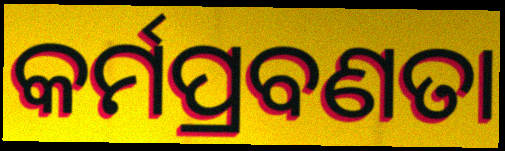
କର୍ମପ୍ରବଣତା